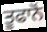
ਤੂਫਾਨੋਂ